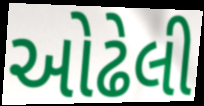
ઓઢેલી